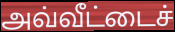
அவ்வீட்டைச்